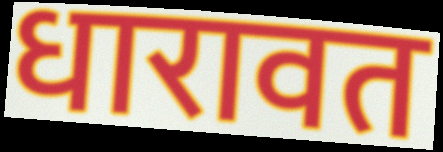
धारावत